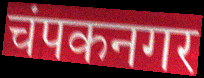
चंपकनगर